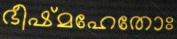
ഭീഷ്മഹേതോഃ